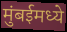
मुंबईमध्ये